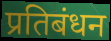
प्रतिबंधन